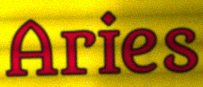
Aries